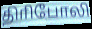
திரிபோலி